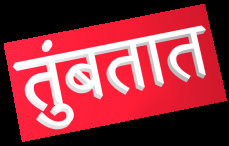
तुंबतात